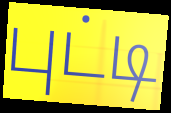
புட்டி